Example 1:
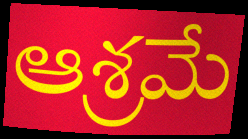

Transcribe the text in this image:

ఆశ్రమే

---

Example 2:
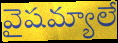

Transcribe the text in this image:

వైషమ్యాలే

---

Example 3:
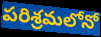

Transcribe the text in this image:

పరిశ్రమలోనో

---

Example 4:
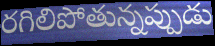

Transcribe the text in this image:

రగిలిపోతున్నప్పుడు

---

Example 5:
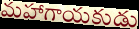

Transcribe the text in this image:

మహాగాయకుడు